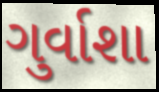
ગુર્વાશા